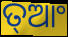
ତ୍ଆଂ